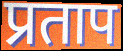
प्रताप